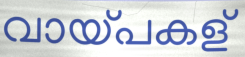
വായ്പകള്